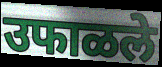
उफाळले